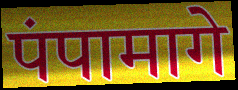
पंपामागे